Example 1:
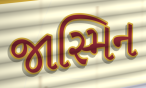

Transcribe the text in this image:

જાસ્મિન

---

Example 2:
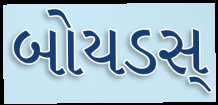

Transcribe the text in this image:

બોયડસ્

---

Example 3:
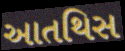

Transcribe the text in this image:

આતથિસ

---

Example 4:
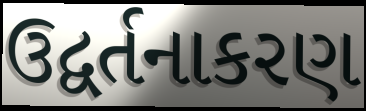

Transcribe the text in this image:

ઉદ્વર્તનાકરણ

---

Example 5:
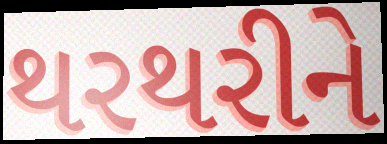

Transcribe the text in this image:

થરથરીને